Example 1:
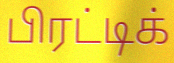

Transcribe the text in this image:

பிரட்டிக்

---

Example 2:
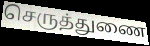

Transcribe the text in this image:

செருத்துணை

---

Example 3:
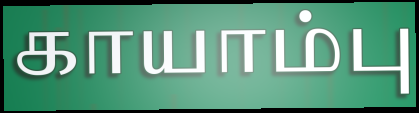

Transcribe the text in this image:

காயாம்பு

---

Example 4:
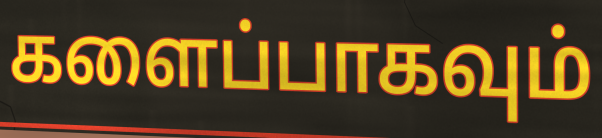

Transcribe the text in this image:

களைப்பாகவும்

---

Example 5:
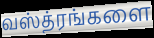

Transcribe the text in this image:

வஸ்த்ரங்களை